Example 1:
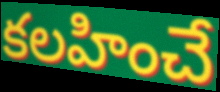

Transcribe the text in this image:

కలహించే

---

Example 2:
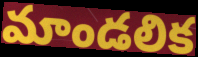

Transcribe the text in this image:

మాండలిక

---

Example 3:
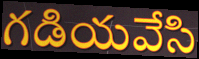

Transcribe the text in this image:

గడియవేసి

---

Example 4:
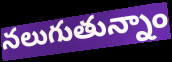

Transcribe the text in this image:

నలుగుతున్నాం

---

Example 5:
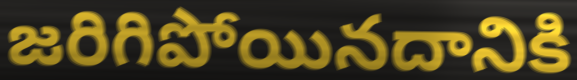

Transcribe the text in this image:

జరిగిపోయినదానికి